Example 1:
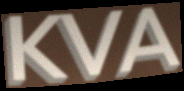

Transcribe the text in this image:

KVA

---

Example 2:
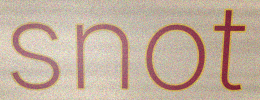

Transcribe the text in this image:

snot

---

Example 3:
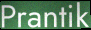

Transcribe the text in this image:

Prantik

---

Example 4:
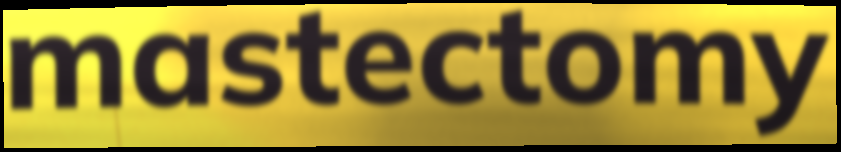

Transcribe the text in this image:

mastectomy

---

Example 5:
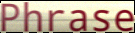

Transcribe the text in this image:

Phrase